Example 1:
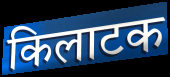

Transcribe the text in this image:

किलाटक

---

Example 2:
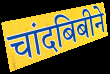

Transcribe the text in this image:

चांदबिबीने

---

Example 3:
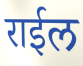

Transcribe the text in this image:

राईल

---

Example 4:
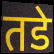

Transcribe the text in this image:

तडे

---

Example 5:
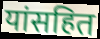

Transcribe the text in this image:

यांसहित